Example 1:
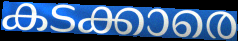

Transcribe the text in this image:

കടക്കാരെ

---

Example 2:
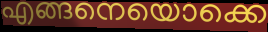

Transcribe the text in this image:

എങ്ങനെയൊക്കെ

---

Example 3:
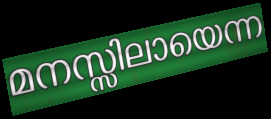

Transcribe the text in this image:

മനസ്സിലായെന്ന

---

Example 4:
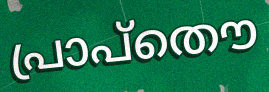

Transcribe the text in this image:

പ്രാപ്തൌ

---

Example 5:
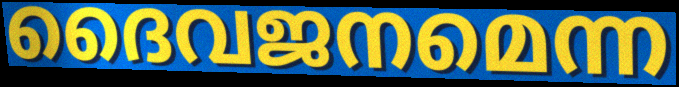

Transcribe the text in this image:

ദൈവജനമെന്ന